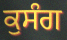
ਕੁਸੰਗ